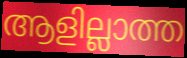
ആളില്ലാത്ത